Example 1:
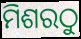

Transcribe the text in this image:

ମିଶରଠୁ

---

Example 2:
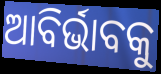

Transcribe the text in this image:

ଆବିର୍ଭାବକୁ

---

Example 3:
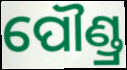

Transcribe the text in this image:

ପୌଣ୍ଡ୍ର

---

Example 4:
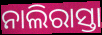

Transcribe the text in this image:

ନାଲିରାସ୍ତା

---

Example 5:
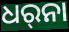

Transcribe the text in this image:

ଧର୍‌ନା